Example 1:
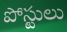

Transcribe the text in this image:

పోస్టులు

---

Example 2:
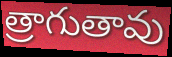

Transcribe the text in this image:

త్రాగుతావు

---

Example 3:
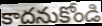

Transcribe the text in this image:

కాదనుకోండి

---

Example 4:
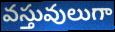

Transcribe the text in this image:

వస్తువులుగా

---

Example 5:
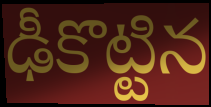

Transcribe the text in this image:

ఢీకొట్టిన